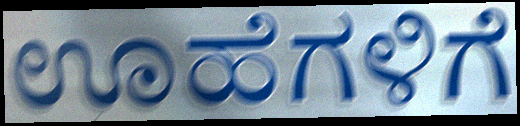
ಊಹೆಗಳಿಗೆ